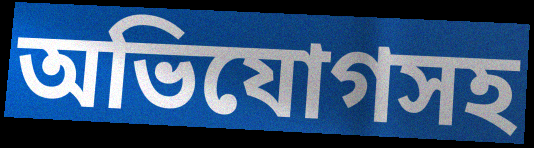
অভিযোগসহ